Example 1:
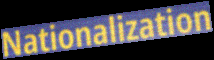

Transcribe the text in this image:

Nationalization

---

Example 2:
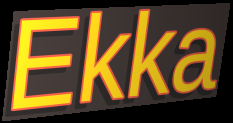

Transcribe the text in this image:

Ekka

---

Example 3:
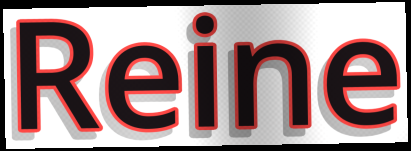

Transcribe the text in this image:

Reine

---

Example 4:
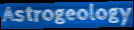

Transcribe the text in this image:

Astrogeology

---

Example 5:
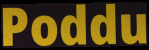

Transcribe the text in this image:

Poddu